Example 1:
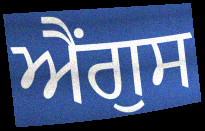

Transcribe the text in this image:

ਐਂਗੁਸ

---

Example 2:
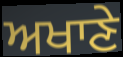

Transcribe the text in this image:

ਅਖਾਣੇ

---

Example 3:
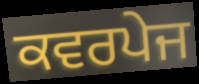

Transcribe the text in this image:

ਕਵਰਪੇਜ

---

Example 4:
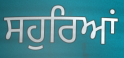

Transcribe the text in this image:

ਸਹੁਰਿਆਂ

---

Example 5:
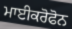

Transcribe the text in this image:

ਮਾਈਕਰੋਫੋਨ